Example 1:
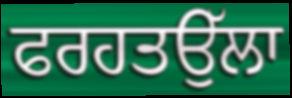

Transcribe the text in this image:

ਫਰਹਤਉੱਲਾ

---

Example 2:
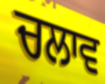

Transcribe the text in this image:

ਚਲਾਵ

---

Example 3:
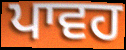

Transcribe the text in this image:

ਪਾਵਹ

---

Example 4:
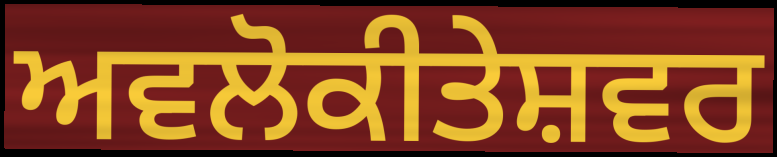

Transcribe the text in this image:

ਅਵਲੋਕੀਤੇਸ਼ਵਰ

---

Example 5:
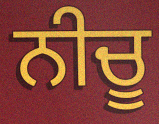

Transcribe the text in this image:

ਨੀਚੂ